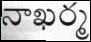
నాఖర్మ